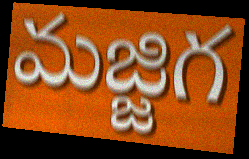
మజ్జిగ